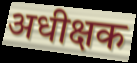
अधीक्षक